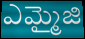
ఎమ్మైజి